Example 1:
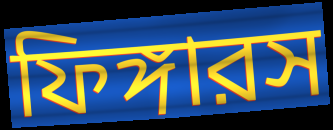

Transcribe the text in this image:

ফিঙ্গারস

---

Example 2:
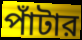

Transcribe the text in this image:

পাঁটার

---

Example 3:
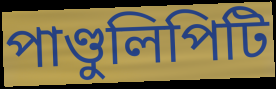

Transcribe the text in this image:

পাণ্ডুলিপিটি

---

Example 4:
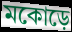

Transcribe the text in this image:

মকোড়ে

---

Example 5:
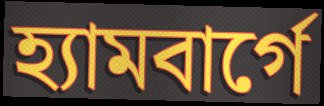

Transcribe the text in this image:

হ্যামবার্গে